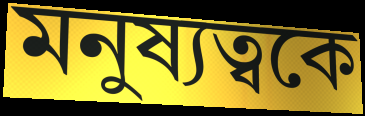
মনুষ্যত্বকে